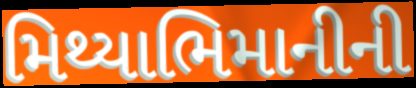
મિથ્યાભિમાનીની